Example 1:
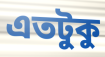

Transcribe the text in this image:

এতটুকু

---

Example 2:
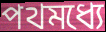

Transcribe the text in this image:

পথমধ্যে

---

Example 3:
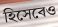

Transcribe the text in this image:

হিসেবেও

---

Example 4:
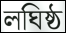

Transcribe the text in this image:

লঘিষ্ঠ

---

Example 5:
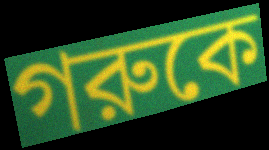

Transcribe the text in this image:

গরুকে